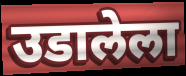
उडालेला